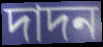
দাদন